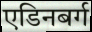
एडिनबर्ग